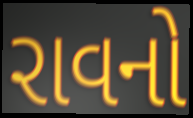
રાવનો